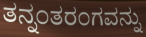
ತನ್ನಂತರಂಗವನ್ನು